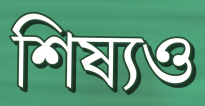
শিষ্যও